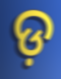
ଡ଼